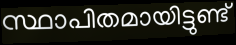
സ്ഥാപിതമായിട്ടുണ്ട്